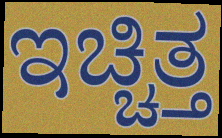
ಇಚ್ಚಿತ್ತ